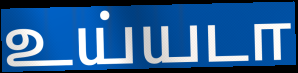
உய்யடா